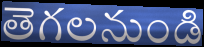
తెగలనుండి